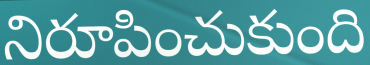
నిరూపించుకుంది